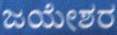
ಜಯೇಶರ